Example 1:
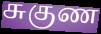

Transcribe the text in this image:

சுகுண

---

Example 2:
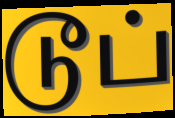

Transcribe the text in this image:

டூப்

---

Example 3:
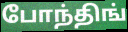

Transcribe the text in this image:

போந்திங்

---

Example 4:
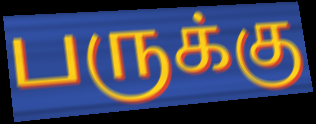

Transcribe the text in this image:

பருக்கு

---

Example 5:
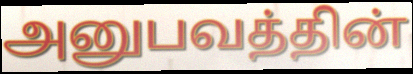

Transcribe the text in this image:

அனுபவத்தின்